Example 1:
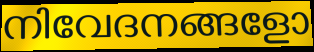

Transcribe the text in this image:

നിവേദനങ്ങളോ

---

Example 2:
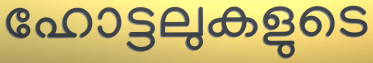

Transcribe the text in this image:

ഹോട്ടലുകളുടെ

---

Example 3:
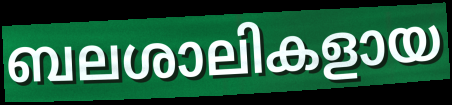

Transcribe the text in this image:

ബലശാലികളായ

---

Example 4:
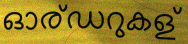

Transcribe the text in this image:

ഓര്ഡറുകള്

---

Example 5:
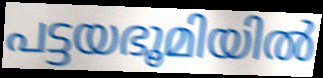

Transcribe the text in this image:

പട്ടയഭൂമിയിൽ